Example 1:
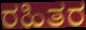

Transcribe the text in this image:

ರಹಿತರ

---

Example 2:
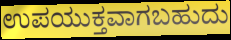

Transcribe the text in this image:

ಉಪಯುಕ್ತವಾಗಬಹುದು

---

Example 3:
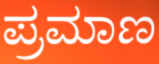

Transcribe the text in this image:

ಪ್ರಮಾಣ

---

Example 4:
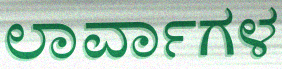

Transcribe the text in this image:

ಲಾರ್ವಾಗಳ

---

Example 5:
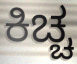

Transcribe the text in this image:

ಕಿಚ್ಚ